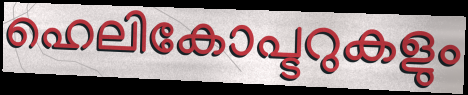
ഹെലികോപ്ടറുകളും